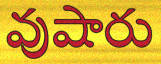
వుషారు